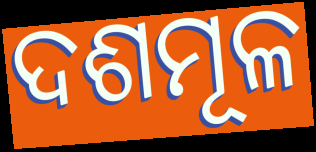
ଦଶମୂଳ